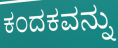
ಕಂದಕವನ್ನು